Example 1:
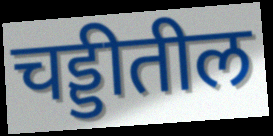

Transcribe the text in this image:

चड्डीतील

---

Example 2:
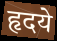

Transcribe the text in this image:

हृदये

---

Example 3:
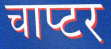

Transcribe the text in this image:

चाप्टर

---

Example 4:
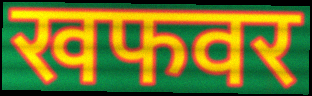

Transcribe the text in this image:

खफवर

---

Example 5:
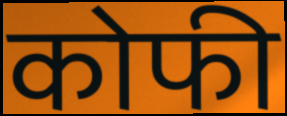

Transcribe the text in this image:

कोफी